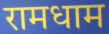
रामधाम